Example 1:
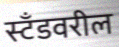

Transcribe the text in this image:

स्टँडवरील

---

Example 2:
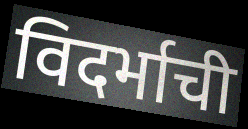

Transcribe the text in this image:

विदर्भाची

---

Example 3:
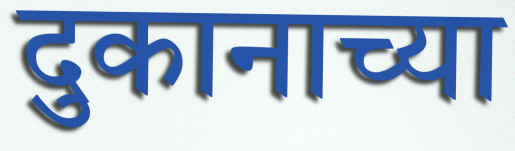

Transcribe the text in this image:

दुकानाच्या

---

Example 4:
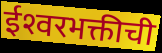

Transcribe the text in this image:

ईश्वरभक्तीची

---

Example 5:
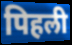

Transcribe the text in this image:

पिहली